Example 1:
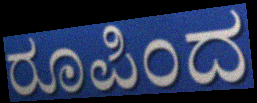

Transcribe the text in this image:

ರೂಪಿಂದ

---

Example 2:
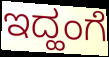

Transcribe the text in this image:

ಇದ್ಹಂಗೆ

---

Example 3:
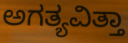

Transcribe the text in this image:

ಅಗತ್ಯವಿತ್ತಾ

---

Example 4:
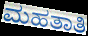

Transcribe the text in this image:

ಮಹತಾತಿ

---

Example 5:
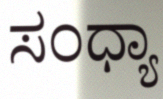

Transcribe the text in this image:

ಸಂಧ್ಯಾ